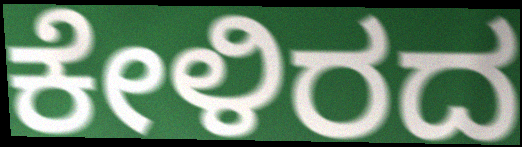
ಕೇಳಿರದ